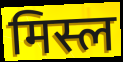
मिस्ल